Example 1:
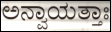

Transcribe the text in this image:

ಅನ್ವಾಯತ್ತಾಃ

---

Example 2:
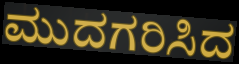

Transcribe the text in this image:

ಮುದಗರಿಸಿದ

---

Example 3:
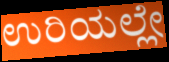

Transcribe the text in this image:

ಉರಿಯಲ್ಲೇ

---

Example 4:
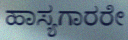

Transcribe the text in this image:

ಹಾಸ್ಯಗಾರರೇ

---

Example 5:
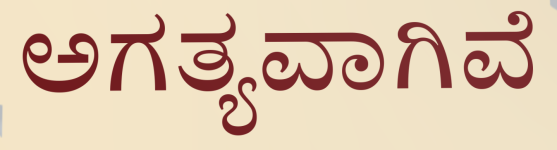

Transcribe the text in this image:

ಅಗತ್ಯವಾಗಿವೆ